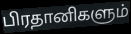
பிரதானிகளும்